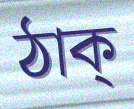
ঠাক্